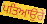
ਪਤਿਆਉਰੇ